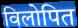
विलोपित